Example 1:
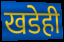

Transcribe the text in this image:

खडेही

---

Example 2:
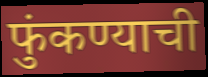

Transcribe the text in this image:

फुंकण्याची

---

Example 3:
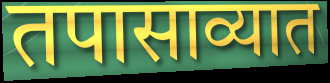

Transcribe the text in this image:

तपासाव्यात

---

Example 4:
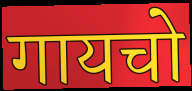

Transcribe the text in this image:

गायचो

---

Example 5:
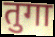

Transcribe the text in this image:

तुगा